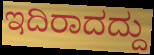
ಇದಿರಾದದ್ದು